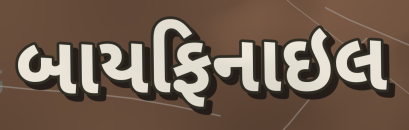
બાયફિનાઇલ